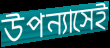
উপন্যাসেই